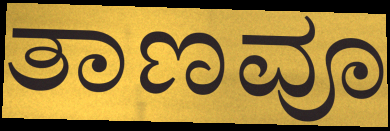
ತಾಣವೂ